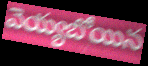
వెయ్యబోయిన